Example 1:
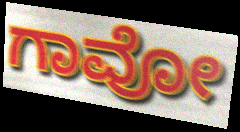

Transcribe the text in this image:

ಗಾವೋ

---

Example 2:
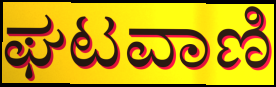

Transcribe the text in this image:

ಘಟವಾಣಿ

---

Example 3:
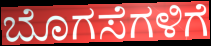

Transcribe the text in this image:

ಬೊಗಸೆಗಳಿಗೆ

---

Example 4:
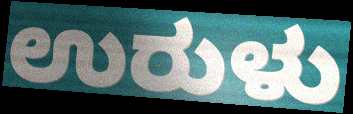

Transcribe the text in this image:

ಉರುಳು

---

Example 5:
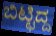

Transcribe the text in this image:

ಬಿಟ್ಟಿದ್ದ